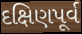
દક્ષિણપૂર્વ